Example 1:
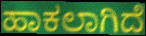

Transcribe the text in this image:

ಹಾಕಲಾಗಿದೆ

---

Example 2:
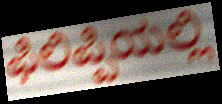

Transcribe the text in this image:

ಫಿಲಿಪ್ಪಿಯಲ್ಲಿ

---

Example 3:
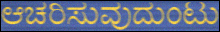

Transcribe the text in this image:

ಆಚರಿಸುವುದುಂಟು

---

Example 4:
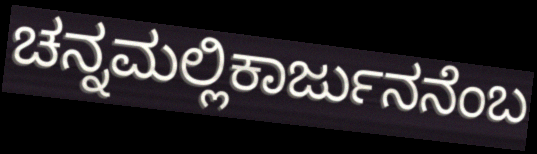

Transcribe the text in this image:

ಚನ್ನಮಲ್ಲಿಕಾರ್ಜುನನೆಂಬ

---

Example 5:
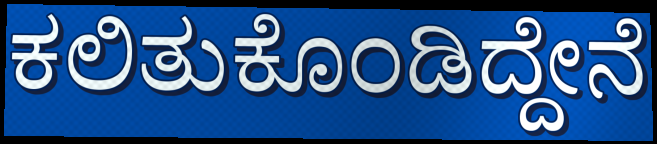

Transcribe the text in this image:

ಕಲಿತುಕೊಂಡಿದ್ದೇನೆ